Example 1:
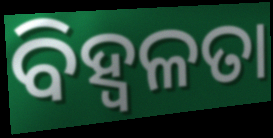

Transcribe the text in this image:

ବିହ୍ଵଳତା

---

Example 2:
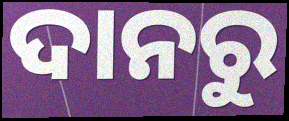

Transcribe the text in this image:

ଦାନରୁ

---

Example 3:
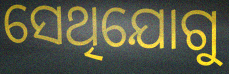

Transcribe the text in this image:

ସେଥିଯୋଗୁ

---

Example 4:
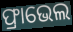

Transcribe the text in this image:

ଫ୍ରାଭେଲ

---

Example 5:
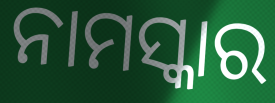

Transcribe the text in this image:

ନାମସ୍କାର